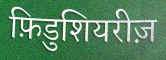
फ़िडुशियरीज़